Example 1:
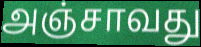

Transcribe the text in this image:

அஞ்சாவது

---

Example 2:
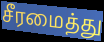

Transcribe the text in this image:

சீரமைத்து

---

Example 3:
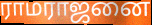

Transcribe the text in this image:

ராமராஜனை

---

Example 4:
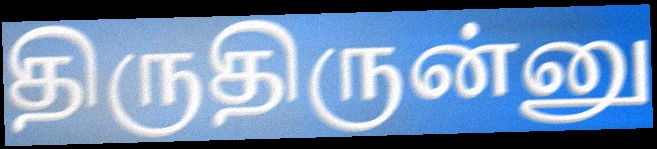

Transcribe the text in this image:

திருதிருன்னு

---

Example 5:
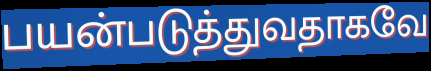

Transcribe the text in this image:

பயன்படுத்துவதாகவே